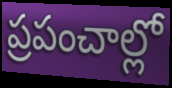
ప్రపంచాల్లో